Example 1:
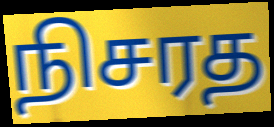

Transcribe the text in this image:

நிசரத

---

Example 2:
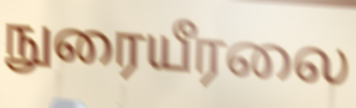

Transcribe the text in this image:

நுரையீரலை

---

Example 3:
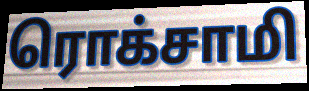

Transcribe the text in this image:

ரொக்சாமி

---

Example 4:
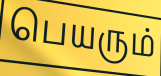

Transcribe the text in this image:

பெயரும்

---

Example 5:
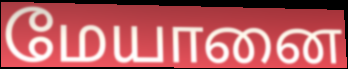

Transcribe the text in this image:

மேயானை